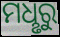
ମଧୢରୁ